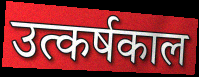
उत्कर्षकाल